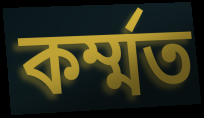
কৰ্ম্মত